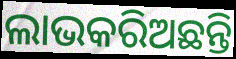
ଲାଭକରିଅଛନ୍ତି